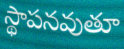
స్థాపనవుతూ